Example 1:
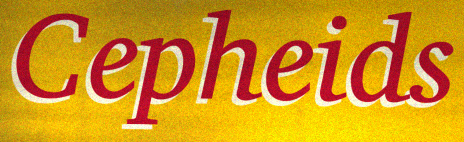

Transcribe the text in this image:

Cepheids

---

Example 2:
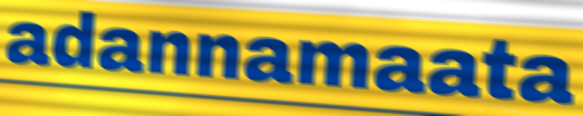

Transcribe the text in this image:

adannamaata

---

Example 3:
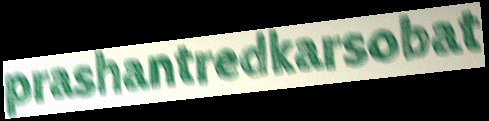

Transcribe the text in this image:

prashantredkarsobat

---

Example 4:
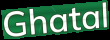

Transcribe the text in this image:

Ghatal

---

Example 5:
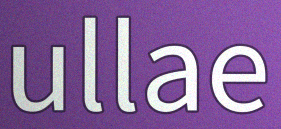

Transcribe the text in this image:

ullae